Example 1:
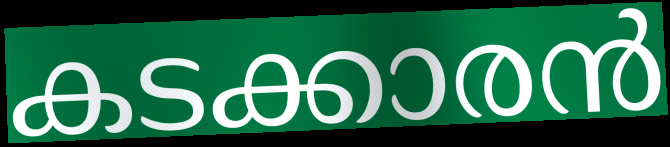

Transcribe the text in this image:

കടക്കാരൻ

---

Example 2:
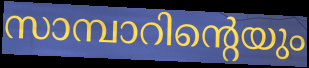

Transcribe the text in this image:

സാമ്പാറിന്റെയും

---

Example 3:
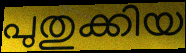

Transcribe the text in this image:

പുതുക്കിയ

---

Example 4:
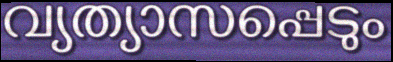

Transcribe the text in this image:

വ്യത്യാസപ്പെടും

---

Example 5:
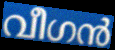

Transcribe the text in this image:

വീഗൻ